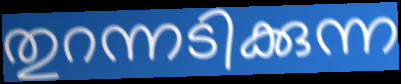
തുറന്നടിക്കുന്ന